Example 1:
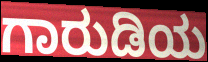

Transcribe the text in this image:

ಗಾರುಡಿಯ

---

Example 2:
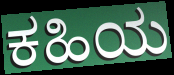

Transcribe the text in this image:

ಕಹಿಯ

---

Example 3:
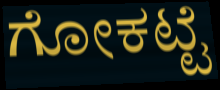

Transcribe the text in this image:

ಗೋಕಟ್ಟೆ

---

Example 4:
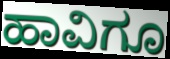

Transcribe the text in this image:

ಹಾವಿಗೂ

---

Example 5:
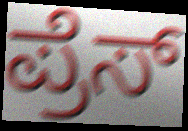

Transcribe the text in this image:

ಪ್ರೆಸ್